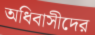
অধিবাসীদের